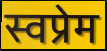
स्वप्रेम